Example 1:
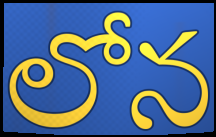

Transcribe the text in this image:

లోన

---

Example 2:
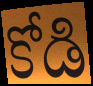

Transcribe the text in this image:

కోడి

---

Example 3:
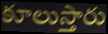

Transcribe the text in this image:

కూలుస్తారు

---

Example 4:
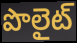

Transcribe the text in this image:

పొలైట్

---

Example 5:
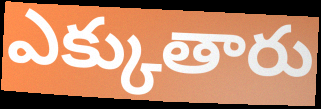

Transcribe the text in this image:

ఎక్కుతారు